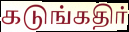
கடுங்கதிர்